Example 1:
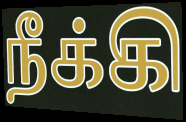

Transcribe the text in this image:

நீக்கி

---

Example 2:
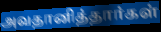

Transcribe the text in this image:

அவதானித்தார்கள்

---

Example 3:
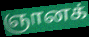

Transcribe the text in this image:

ஞானக்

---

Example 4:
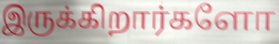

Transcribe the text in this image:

இருக்கிறார்களோ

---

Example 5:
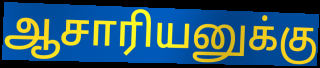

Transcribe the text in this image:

ஆசாரியனுக்கு